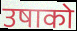
उषाको